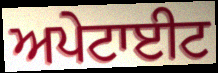
ਅਪੇਟਾਈਟ